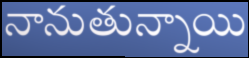
నానుతున్నాయి